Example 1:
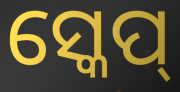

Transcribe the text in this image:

ସ୍କେପ୍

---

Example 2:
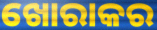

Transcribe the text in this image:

ଖୋରାକର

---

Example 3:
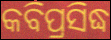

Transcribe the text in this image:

କବିପ୍ରସିଦ୍ଧ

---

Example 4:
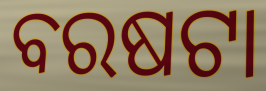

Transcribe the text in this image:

ବରଷଟା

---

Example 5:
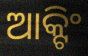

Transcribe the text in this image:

ଆକ୍ଟିଂ